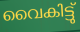
വൈകിട്ടു്